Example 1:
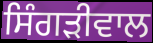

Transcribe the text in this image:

ਸਿੰਗੜੀਵਾਲ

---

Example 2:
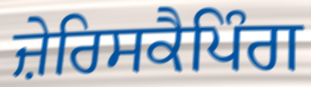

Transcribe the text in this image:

ਜ਼ੇਰਿਸਕੈਪਿੰਗ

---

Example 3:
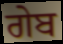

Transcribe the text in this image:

ਗੇਬ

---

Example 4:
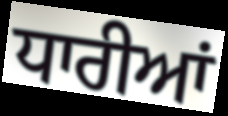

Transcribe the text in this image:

ਧਾਰੀਆਂ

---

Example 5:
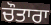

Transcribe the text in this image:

ਚੌਤਾਰਾ